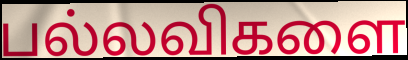
பல்லவிகளை